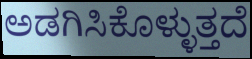
ಅಡಗಿಸಿಕೊಳ್ಳುತ್ತದೆ